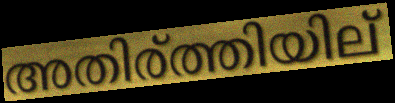
അതിര്ത്തിയില്